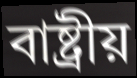
বাষ্ট্রীয়